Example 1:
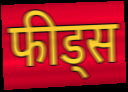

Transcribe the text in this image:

फीड्स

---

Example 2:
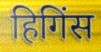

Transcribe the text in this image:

हिगिंस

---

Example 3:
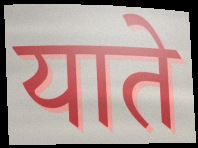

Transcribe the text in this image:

याते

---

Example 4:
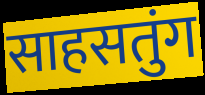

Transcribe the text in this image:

साहसतुंग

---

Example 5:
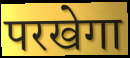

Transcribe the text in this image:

परखेगा